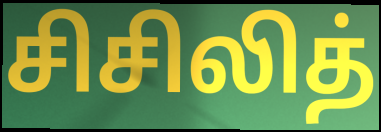
சிசிலித்